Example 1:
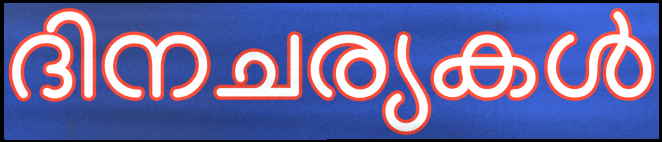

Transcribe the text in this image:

ദിനചര്യകൾ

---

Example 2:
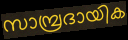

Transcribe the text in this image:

സാമ്പ്രദായിക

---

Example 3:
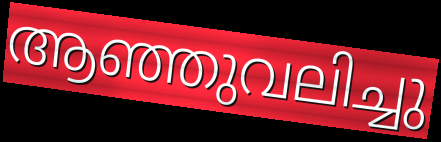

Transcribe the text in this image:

ആഞ്ഞുവലിച്ചു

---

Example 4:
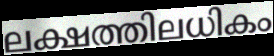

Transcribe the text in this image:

ലക്ഷത്തിലധികം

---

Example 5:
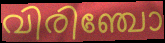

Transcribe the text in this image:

വിരിഞ്ചോ